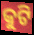
କୁଟି